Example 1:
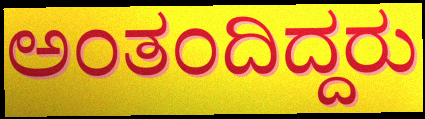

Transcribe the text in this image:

ಅಂತಂದಿದ್ದರು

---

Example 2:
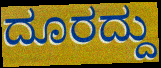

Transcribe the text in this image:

ದೂರದ್ದು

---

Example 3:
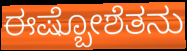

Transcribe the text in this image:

ಈಷ್ಬೋಶೆತನು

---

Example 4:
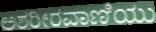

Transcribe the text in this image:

ಅಶರೀರವಾಣಿಯು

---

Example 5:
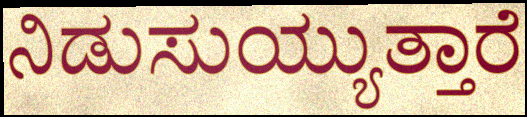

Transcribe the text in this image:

ನಿಡುಸುಯ್ಯುತ್ತಾರೆ